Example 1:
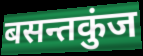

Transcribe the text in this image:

बसन्तकुंज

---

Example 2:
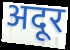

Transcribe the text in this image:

अदूर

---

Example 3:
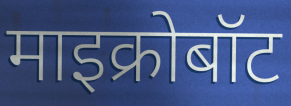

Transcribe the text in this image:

माइक्रोबॉट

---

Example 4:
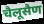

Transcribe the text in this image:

चैलूसैण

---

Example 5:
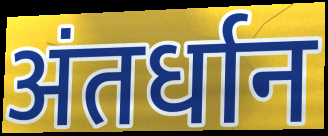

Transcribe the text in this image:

अंतर्धान